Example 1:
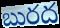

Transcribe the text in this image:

బురద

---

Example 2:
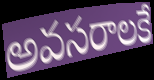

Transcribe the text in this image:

అవసరాలకే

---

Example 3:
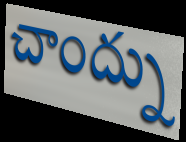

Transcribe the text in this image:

చాంద్ను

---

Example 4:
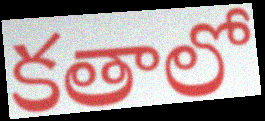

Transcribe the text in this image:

కతాలో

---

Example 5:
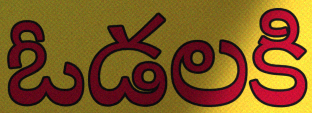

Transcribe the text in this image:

ఓడలకి